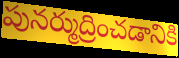
పునర్ముద్రించడానికి